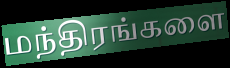
மந்திரங்களை